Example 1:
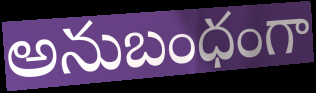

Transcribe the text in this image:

అనుబంధంగా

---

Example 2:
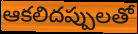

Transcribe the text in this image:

ఆకలిదప్పులతో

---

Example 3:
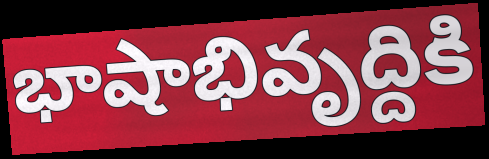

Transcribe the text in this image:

భాషాభివృద్దికి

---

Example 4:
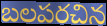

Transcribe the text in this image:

బలపరచిన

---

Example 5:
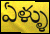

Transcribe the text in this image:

ఏళ్ళు